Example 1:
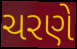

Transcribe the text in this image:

ચરણે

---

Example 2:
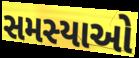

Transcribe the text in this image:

સમસ્યાઓ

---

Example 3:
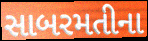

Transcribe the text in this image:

સાબરમતીના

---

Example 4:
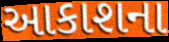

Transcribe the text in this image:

આકાશના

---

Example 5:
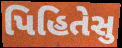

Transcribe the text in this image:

પિહિતેસુ